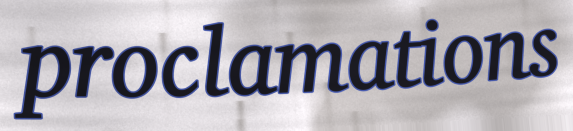
proclamations